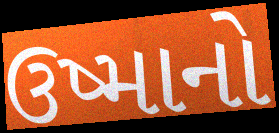
ઉષ્માનો